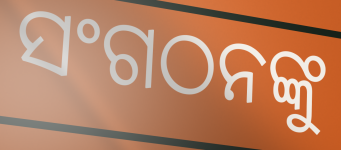
ସଂଗଠନଙ୍କୁ